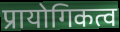
प्रायोगिकत्व